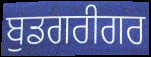
ਬੁਡਗਰੀਗਰ